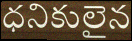
ధనికులైన